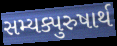
સમ્યક્પુરુષાર્થ